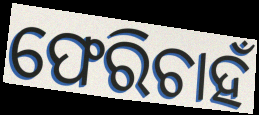
ଫେରିଚାହଁ